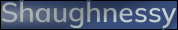
Shaughnessy